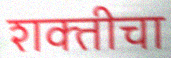
शक्‍तीचा